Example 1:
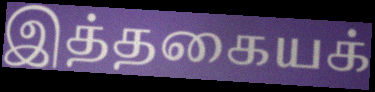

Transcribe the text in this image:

இத்தகையக்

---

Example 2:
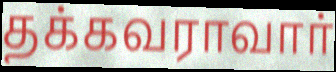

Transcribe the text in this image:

தக்கவராவார்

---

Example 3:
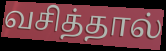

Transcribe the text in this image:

வசித்தால்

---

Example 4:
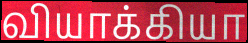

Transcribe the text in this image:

வியாக்கியா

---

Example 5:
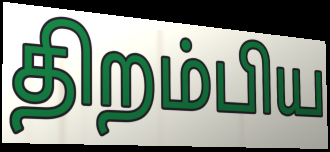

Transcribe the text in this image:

திறம்பிய